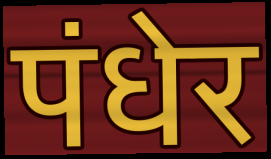
पंधेर